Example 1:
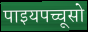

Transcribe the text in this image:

पाइयपच्चूसो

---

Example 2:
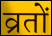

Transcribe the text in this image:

व्रतों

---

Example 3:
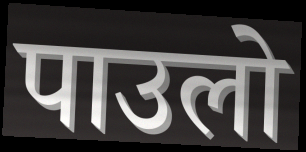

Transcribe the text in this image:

पाउलो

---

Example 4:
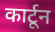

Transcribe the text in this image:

कार्टून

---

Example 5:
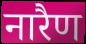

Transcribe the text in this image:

नारैण